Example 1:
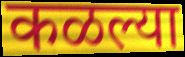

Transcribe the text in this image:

कळल्या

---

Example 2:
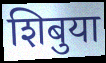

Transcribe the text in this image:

शिबुया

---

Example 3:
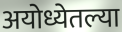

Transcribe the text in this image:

अयोध्येतल्या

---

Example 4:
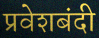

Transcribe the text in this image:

प्रवेशबंदी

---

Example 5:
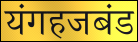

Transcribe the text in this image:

यंगहजबंड